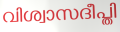
വിശ്വാസദീപ്തി